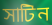
সাটিন